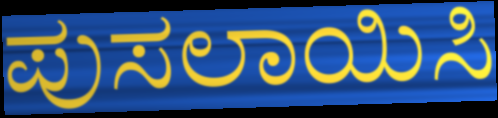
ಪುಸಲಾಯಿಸಿ